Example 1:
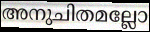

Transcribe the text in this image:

അനുചിതമല്ലോ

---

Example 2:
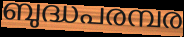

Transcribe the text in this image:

ബുദ്ധപരമ്പര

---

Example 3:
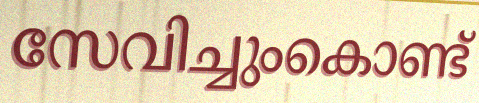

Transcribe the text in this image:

സേവിച്ചുംകൊണ്ട്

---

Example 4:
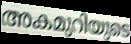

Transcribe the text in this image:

അകമുറിയുടെ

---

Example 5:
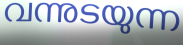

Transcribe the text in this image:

വന്നുടയുന്ന